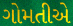
ગોમતીએ